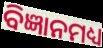
ବିଜ୍ଞାନମଧ୍ୟ